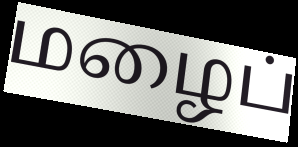
மழைப்